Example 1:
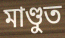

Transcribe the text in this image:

মাণ্ডুত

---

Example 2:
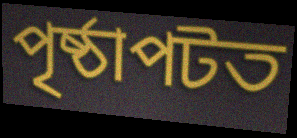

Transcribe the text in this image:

পৃষ্ঠাপটত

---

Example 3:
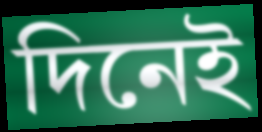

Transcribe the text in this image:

দিনেই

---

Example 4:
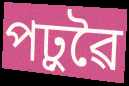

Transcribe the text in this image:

পঢ়ুৱৈ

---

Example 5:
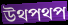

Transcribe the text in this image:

উথপথপ